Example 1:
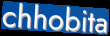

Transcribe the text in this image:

chhobita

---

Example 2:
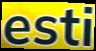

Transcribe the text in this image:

esti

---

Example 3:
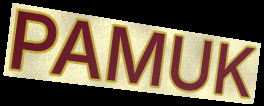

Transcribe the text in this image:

PAMUK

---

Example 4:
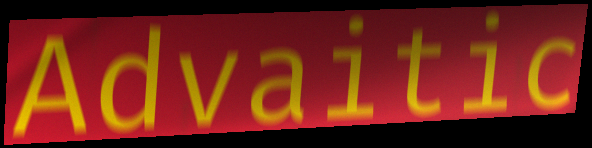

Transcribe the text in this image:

Advaitic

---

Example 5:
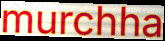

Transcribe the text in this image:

murchha